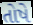
તોષે